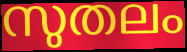
സുതലം